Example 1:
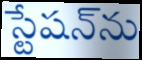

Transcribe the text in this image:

స్టేషన్‌ను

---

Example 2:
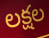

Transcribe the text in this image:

లక్షల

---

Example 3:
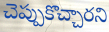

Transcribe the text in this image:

చెప్పుకొచ్చారని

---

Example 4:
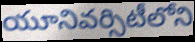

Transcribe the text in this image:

యూనివర్సిటీలోని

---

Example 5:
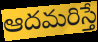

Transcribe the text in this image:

ఆదమరిస్తే